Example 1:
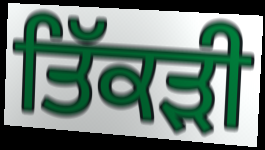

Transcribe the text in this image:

ਤਿੱਕੜੀ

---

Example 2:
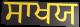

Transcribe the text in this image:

ਸਾਖਯ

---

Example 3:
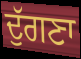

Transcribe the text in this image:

ਦੁੱਗਣਾ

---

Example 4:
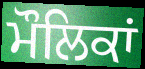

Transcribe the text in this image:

ਮੌਲਿਕਾਂ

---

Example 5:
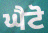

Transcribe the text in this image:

ਘੈਟੋ